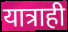
यात्राही